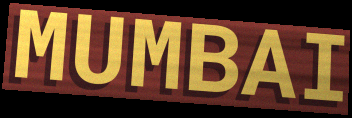
MUMBAI